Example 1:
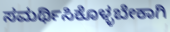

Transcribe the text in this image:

ಸಮರ್ಥಿಸಿಕೊಳ್ಳಬೇಕಾಗಿ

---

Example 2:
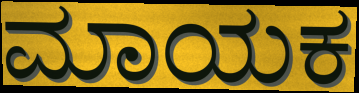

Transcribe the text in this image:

ಮಾಯಕ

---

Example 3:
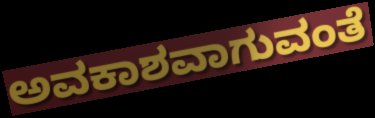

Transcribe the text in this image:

ಅವಕಾಶವಾಗುವಂತೆ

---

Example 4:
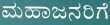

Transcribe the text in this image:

ಮಹಾಜನರಿಗೆ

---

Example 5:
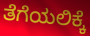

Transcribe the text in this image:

ತೆಗೆಯಲಿಕ್ಕೆ